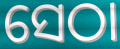
ସେଠା